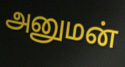
அனுமன்